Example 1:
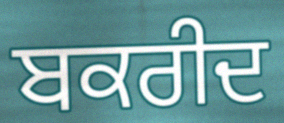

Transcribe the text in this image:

ਬਕਰੀਦ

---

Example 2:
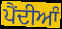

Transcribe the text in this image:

ਪੈੰਦੀਆੰ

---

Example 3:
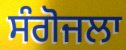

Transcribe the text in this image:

ਸੰਗੋਜਲਾ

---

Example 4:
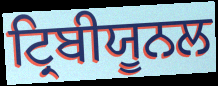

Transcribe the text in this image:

ਟ੍ਰਿਬੀਯੂਨਲ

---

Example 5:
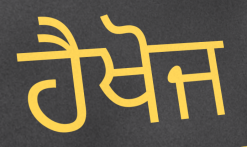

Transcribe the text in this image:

ਹੈਖੋਜ